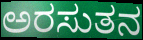
ಅರಸುತನ